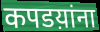
कपडय़ांना